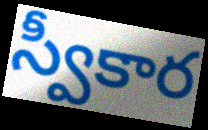
స్వీకార